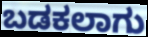
ಬಡಕಲಾಗು